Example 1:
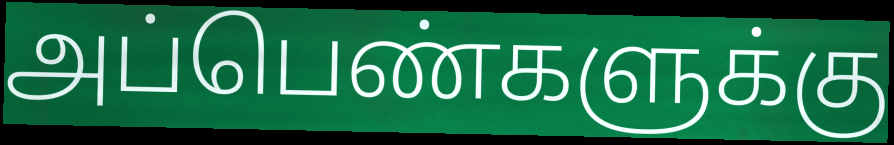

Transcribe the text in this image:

அப்பெண்களுக்கு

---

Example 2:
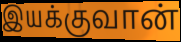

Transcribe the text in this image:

இயக்குவான்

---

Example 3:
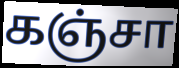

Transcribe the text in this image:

கஞ்சா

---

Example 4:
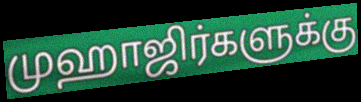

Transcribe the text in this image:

முஹாஜிர்களுக்கு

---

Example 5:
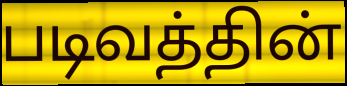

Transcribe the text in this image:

படிவத்தின்